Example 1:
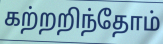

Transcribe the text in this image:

கற்றறிந்தோம்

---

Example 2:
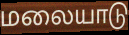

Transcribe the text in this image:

மலையாடு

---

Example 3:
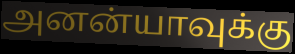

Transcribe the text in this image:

அனன்யாவுக்கு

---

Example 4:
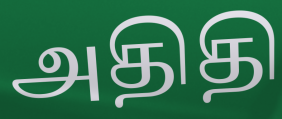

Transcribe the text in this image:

அதிதி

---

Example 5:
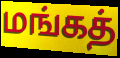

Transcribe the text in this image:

மங்கத்